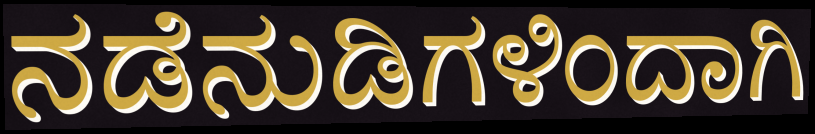
ನಡೆನುಡಿಗಳಿಂದಾಗಿ